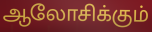
ஆலோசிக்கும்